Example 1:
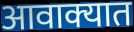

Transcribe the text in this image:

आवाक्‍यात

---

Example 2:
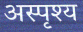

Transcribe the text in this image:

अस्पृश्य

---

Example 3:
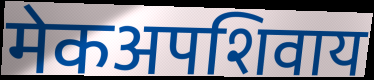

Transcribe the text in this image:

मेकअपशिवाय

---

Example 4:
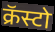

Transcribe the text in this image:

क्रॅस्टो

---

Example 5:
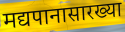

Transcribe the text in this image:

मद्यपानासारख्या